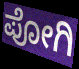
ಪೋಗಿ